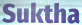
Suktha